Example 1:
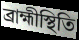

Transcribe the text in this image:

ব্রাহ্মীস্থিতি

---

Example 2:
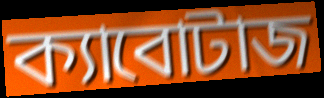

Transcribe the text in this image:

ক্যাবোটাজ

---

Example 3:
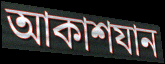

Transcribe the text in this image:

আকাশযান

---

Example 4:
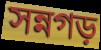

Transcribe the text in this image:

সন্নগড়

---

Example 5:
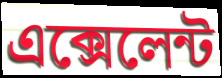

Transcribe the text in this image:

এক্সেলেন্ট